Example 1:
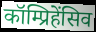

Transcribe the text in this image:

कॉम्प्रिहेंसिव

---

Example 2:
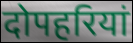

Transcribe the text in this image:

दोपहरियां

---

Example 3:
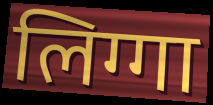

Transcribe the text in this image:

लिग्गा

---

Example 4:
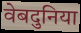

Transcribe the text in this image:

वेबदुनिया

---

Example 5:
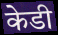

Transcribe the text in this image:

केडी